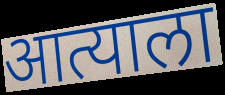
आत्याला